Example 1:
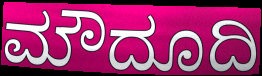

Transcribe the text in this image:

ಮೌದೂದಿ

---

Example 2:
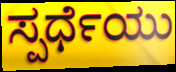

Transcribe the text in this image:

ಸ್ಪರ್ಧೆಯು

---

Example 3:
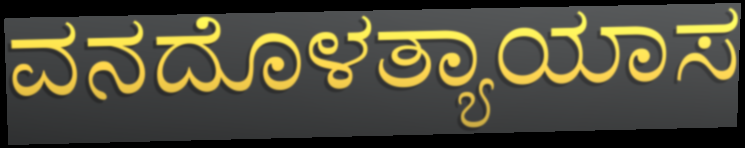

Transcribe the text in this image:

ವನದೊಳತ್ಯಾಯಾಸ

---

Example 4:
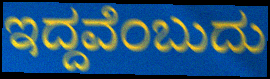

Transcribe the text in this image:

ಇದ್ದವೆಂಬುದು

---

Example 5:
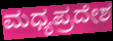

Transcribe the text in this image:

ಮಧ್ಯಪ್ರದೇಶ